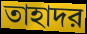
তাহাদর